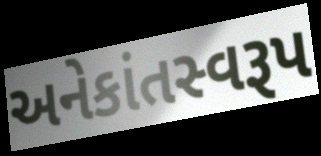
અનેકાંતસ્વરૂપ